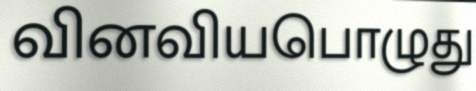
வினவியபொழுது